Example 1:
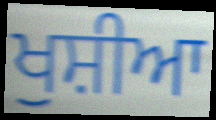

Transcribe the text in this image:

ਖੁਸ਼ੀਆ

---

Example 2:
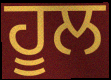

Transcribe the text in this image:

ਹੂਲ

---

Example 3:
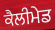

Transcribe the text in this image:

ਕੈਲੀਮੇਡ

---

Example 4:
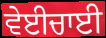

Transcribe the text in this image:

ਵੇਈਚਾਈ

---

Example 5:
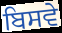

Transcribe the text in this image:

ਬਿਸਵੇ